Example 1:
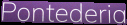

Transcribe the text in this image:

Pontederia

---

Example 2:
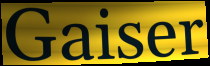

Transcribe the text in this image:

Gaiser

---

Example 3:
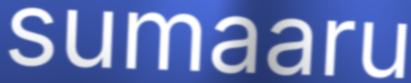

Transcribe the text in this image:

sumaaru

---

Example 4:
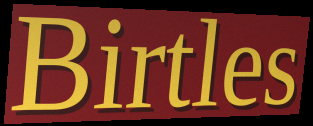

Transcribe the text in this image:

Birtles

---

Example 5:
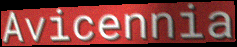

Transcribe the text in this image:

Avicennia